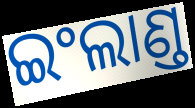
ଇଂଲାଣ୍ଡ